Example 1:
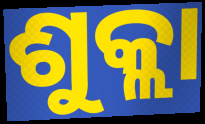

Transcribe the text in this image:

ଶୁକ୍ଲା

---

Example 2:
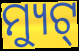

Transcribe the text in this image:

ମ୍ୟୁଟ୍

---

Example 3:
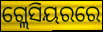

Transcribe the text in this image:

ଗ୍ଲେସିୟରରେ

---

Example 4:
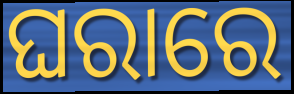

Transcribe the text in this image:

ଘରାରେ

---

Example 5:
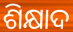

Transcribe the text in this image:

ଶିକ୍ଷାଦ